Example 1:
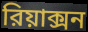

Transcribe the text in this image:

রিয়াক্সন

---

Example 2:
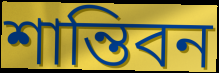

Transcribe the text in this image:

শান্তিবন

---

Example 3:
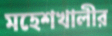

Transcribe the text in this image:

মহেশখালীর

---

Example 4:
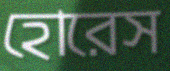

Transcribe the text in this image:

হোরেস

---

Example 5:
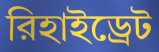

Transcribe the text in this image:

রিহাইড্রেট